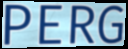
PERG